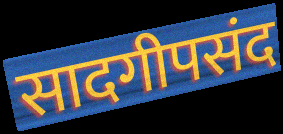
सादगीपसंद